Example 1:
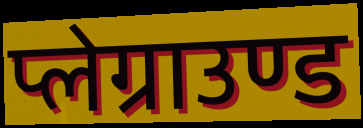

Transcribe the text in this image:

प्लेग्राउण्ड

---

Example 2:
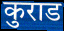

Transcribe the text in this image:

कुराड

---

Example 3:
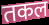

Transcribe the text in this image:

तकल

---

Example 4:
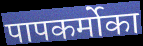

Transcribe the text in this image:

पापकर्मोका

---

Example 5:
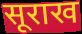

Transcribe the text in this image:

सूराख